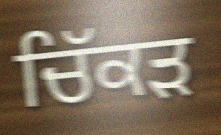
ਚਿੱਕੜ